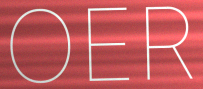
OER